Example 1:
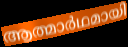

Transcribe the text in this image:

ആത്മാർഥമായി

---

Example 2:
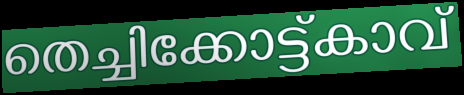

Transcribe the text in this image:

തെച്ചിക്കോട്ട്കാവ്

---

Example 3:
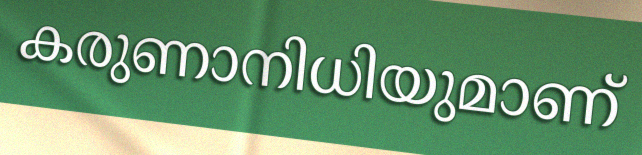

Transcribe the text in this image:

കരുണാനിധിയുമാണ്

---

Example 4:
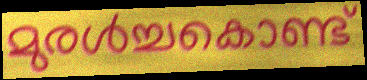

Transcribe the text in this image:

മുരൾച്ചകൊണ്ട്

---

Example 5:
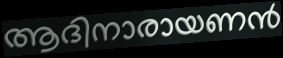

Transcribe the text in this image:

ആദിനാരായണൻ